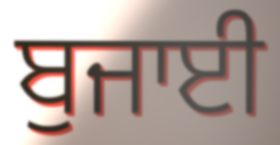
ਬੁਜਾਈ